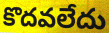
కొదవలేదు